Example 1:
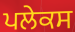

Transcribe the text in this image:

ਪਲੇਕਸ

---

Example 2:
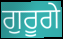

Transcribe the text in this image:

ਗੁਰੂਗੇ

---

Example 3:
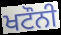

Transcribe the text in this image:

ਖਟੌਨੀ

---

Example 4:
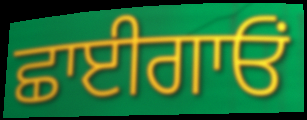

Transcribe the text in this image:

ਛਾਈਗਾਓਂ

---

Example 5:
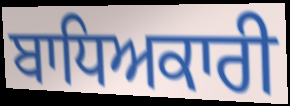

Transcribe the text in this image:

ਬਾਧਿਅਕਾਰੀ